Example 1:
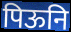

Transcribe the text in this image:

पिऊनि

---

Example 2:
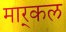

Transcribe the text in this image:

मार्कल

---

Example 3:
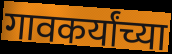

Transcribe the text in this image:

गावकर्यांच्या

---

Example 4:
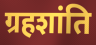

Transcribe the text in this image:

ग्रहशांति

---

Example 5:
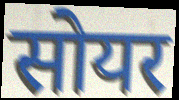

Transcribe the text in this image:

सोयर